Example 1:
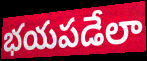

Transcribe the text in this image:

భయపడేలా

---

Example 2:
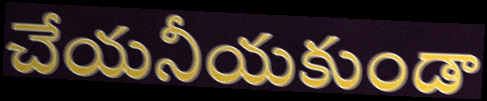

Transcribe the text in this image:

చేయనీయకుండా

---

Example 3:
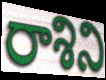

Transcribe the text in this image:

రాశిని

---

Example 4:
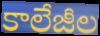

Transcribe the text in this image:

కాలేజీల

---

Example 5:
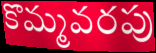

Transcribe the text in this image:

కొమ్మవరపు